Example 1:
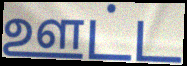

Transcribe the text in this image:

ஊட்ட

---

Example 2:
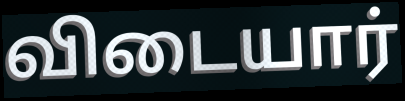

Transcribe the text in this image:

விடையார்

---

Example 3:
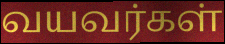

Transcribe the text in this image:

வயவர்கள்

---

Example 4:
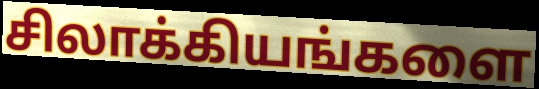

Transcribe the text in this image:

சிலாக்கியங்களை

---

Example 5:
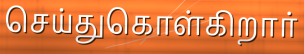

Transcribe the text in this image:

செய்துகொள்கிறார்